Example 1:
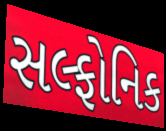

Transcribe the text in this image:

સલ્ફોનિક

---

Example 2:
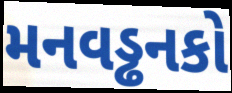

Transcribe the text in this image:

મનવડ્ઢનકો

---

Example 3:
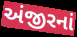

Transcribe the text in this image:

અંજીરનાં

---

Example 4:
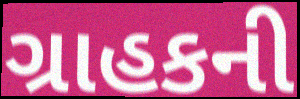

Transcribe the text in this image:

ગ્રાહકની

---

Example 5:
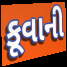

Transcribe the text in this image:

કૂવાની